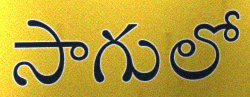
సాగులో